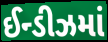
ઈન્ડીઝમાં